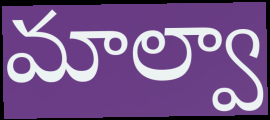
మాల్వా